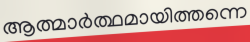
ആത്മാർത്ഥമായിത്തന്നെ